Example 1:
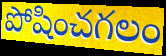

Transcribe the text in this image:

పోషించగలం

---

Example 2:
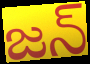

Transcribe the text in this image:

జన్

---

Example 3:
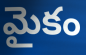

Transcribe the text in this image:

మైకం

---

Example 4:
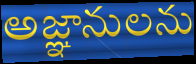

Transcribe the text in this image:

అజ్ఞానులను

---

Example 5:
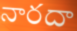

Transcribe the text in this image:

నారదా